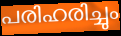
പരിഹരിച്ചും